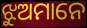
ଝୁଅମାନେ